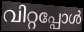
വിറ്റപ്പോൾ